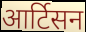
आर्टिसन